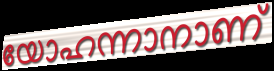
യോഹന്നാനാണ്